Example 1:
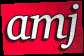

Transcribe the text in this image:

amj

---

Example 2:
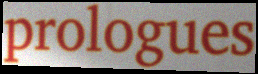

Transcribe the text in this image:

prologues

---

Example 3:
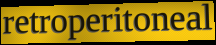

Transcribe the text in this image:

retroperitoneal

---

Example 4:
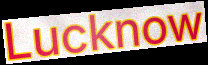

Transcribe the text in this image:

Lucknow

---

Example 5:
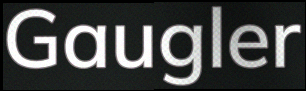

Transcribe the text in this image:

Gaugler